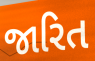
જારિત